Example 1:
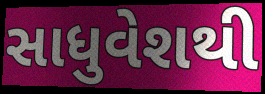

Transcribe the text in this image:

સાધુવેશથી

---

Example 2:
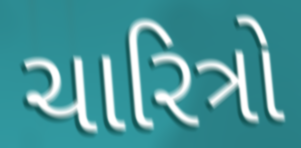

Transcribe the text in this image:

ચારિત્રો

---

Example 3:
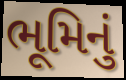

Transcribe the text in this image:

ભૂમિનું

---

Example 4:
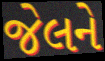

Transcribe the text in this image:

જેલને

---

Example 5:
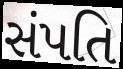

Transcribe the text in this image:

સંપતિ